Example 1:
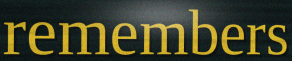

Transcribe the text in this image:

remembers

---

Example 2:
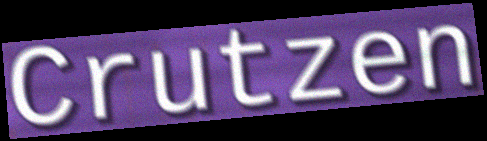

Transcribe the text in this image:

Crutzen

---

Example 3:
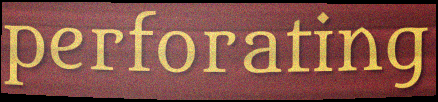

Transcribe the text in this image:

perforating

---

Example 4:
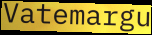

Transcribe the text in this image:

Vatemargu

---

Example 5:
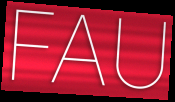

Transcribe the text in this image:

FAU